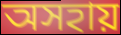
অসহায়